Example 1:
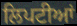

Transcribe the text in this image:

ਲਿਪਟੀਆਂ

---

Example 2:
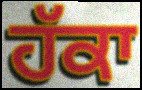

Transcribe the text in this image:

ਹੱਕਾ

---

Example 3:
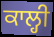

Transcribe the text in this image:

ਕਾਲ੍ਹ੍ਹੀ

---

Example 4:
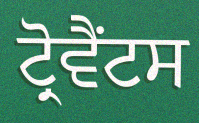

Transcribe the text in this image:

ਟ੍ਰੋਵੈਂਟਸ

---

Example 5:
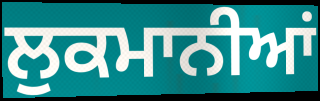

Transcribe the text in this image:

ਲੁਕਮਾਨੀਆਂ